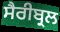
ਸੈਰੀਬ੍ਰਲ